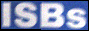
ISBs